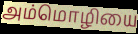
அம்மொழியை